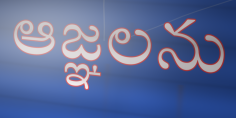
ఆజ్ఞలను